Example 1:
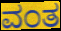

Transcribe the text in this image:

ವಂತ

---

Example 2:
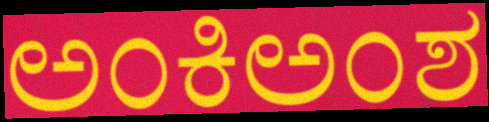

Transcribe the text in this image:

ಅಂಕಿಅಂಶ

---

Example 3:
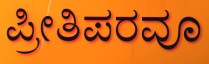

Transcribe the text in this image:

ಪ್ರೀತಿಪರವೂ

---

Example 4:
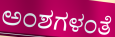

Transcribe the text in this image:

ಅಂಶಗಳಂತೆ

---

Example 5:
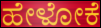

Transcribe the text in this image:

ಹೇಳೋಕೆ